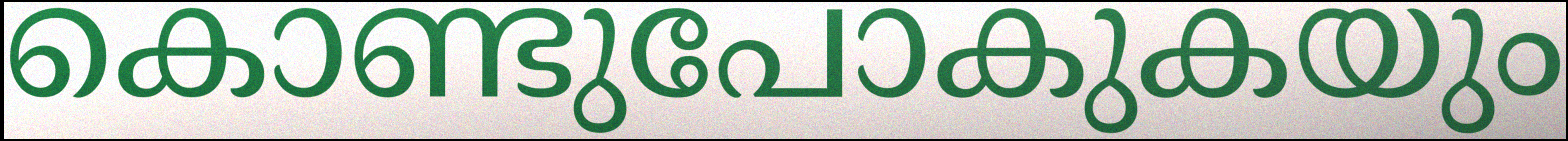
കൊണ്ടുപോകുകയും